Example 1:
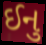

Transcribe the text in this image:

ઈનુ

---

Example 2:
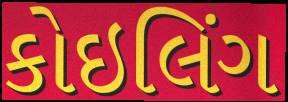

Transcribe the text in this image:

કોઇલિંગ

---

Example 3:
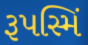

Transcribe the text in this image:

રૂપસ્મિં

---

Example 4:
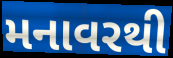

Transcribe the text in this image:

મનાવરથી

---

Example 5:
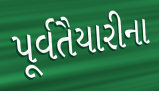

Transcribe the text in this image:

પૂર્વતૈયારીના